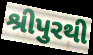
શ્રીપુરથી